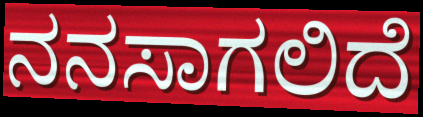
ನನಸಾಗಲಿದೆ